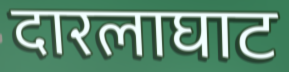
दारलाघाट